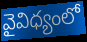
వైవిధ్యంలో